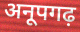
अनूपगढ़